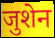
जुशेन